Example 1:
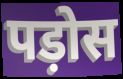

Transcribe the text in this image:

पड़ोस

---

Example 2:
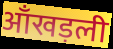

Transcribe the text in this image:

आँखड़ली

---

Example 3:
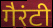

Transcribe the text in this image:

गैरंटी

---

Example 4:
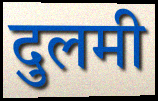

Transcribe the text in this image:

दुलमी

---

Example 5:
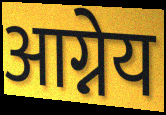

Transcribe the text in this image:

आग्नेय